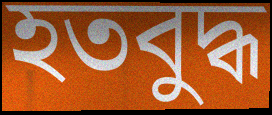
হতবুদ্ধ